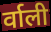
र्वाली